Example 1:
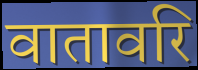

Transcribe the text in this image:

वातावरि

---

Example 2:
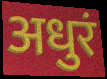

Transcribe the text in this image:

अधुरं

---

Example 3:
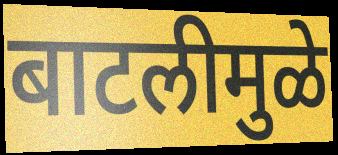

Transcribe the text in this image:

बाटलीमुळे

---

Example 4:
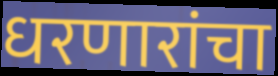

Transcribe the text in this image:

धरणारांचा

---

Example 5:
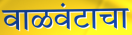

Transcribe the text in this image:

वाळवंटाचा